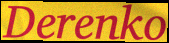
Derenko